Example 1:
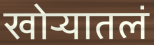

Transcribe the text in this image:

खोऱ्यातलं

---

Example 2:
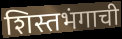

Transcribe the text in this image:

शिस्तभंगाची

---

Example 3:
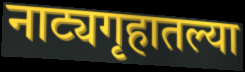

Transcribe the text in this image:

नाट्यगृहातल्या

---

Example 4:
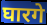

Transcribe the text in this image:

घारगे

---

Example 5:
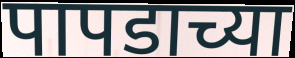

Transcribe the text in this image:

पापडाच्या